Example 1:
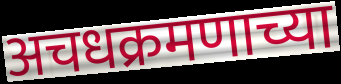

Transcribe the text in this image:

अचधक्रमणाच्या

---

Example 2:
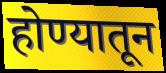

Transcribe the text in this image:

होण्यातून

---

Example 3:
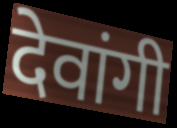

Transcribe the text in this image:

देवांगी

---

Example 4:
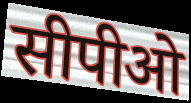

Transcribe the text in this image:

सीपीओ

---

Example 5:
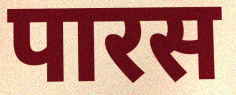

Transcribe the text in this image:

पारस